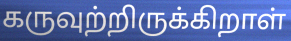
கருவுற்றிருக்கிறாள்